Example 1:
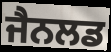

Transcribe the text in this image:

ਜੈਨਲਡ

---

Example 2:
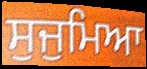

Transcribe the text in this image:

ਸੁਜੁਮਿਆ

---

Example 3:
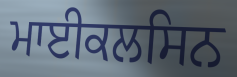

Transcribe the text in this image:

ਮਾਈਕਲਸਿਨ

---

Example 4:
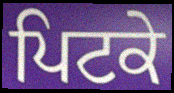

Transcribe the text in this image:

ਪਿਟਕੇ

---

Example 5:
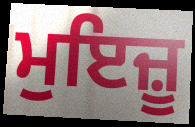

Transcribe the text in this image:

ਮੁਇਜ਼ੂ